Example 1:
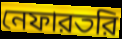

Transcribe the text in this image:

নেফারতরি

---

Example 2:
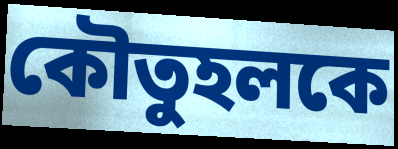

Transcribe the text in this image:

কৌতুহলকে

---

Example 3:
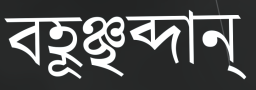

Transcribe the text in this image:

বহূঞ্ছব্দান্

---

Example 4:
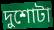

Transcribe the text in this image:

দুশোটা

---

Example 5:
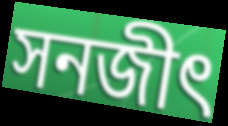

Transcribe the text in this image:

সনজীৎ